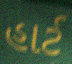
હાર્ટ